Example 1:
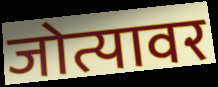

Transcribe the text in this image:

जोत्यावर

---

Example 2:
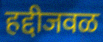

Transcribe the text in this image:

हद्दीजवळ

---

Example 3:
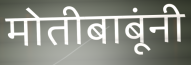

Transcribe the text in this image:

मोतीबाबूंनी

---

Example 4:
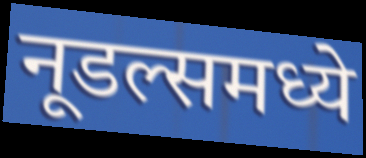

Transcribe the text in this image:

नूडल्समध्ये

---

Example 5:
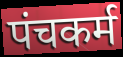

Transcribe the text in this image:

पंचकर्म